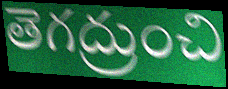
తెగద్రుంచి